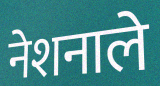
नेशनाले